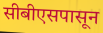
सीबीएसपासून